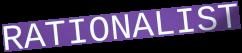
RATIONALIST